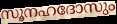
സൂനഹദോസും